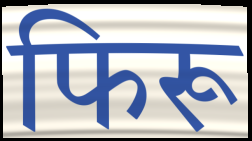
फिरू